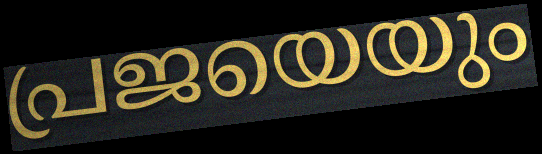
പ്രജയെയും